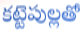
కట్టెపుల్లతో